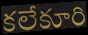
కలేకూరి